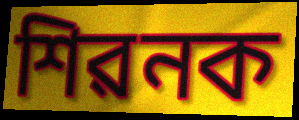
শিৱনক